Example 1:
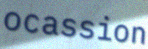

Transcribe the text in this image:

ocassion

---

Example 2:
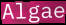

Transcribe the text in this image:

Algae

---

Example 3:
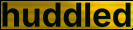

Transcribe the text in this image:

huddled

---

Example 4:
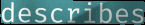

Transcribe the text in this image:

describes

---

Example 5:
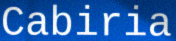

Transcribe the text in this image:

Cabiria